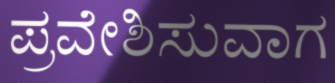
ಪ್ರವೇಶಿಸುವಾಗ